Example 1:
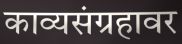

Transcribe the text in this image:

काव्यसंग्रहावर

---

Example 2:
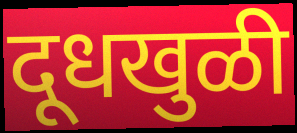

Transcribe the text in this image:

दूधखुळी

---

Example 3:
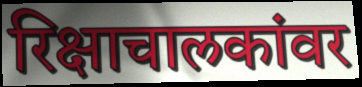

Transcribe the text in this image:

रिक्षाचालकांवर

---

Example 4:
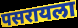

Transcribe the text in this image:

पसरायला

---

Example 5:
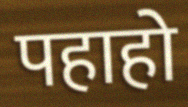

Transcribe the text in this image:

पहाहो